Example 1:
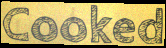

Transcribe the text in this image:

Cooked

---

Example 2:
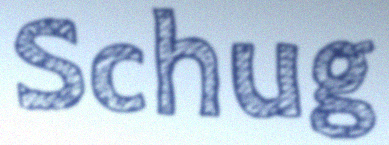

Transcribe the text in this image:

Schug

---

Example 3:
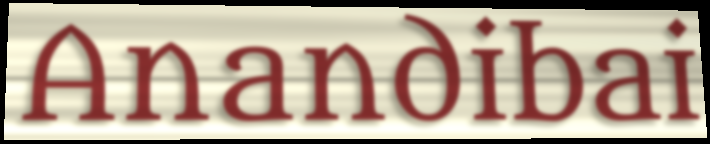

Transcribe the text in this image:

Anandibai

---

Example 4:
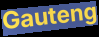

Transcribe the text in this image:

Gauteng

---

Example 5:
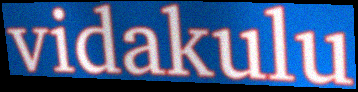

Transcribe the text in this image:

vidakulu